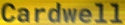
Cardwell